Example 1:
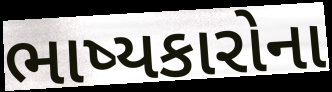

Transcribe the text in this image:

ભાષ્યકારોના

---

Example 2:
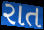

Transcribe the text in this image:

રાત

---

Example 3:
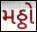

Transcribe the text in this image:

મઠ્ઠો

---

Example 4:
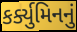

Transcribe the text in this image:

કર્ક્યુમિનનું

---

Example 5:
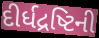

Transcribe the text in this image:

દીર્ધદ્રષ્ટિની